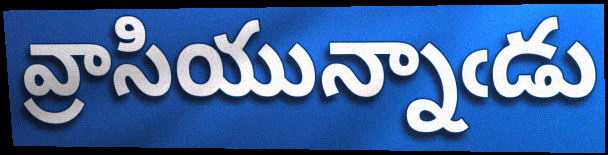
వ్రాసియున్నాఁడు